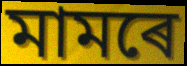
মামৰে